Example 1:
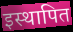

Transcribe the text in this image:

इस्थापित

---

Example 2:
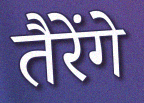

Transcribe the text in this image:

तैरेंगे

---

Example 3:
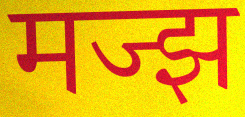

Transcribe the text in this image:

मज्झ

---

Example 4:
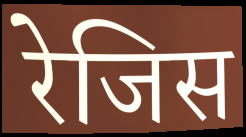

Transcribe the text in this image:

रेजिस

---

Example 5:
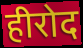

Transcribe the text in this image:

हीरोद